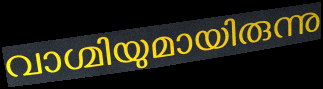
വാഗ്മിയുമായിരുന്നു